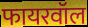
फायरवॉल